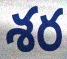
శర